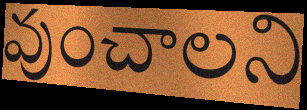
వుంచాలని